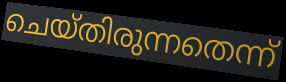
ചെയ്തിരുന്നതെന്ന്